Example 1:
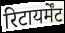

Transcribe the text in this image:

रिटायर्मेंट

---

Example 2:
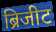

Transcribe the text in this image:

ब्रिजीट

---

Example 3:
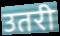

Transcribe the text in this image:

उतरी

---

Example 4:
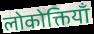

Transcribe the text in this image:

लोकोक्तियाँ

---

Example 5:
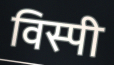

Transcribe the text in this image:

विस्पी